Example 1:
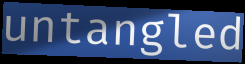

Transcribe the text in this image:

untangled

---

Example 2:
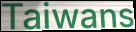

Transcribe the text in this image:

Taiwans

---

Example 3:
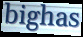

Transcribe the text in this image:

bighas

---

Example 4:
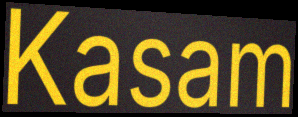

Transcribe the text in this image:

Kasam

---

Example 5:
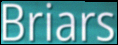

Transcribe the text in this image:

Briars